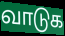
வாடுக